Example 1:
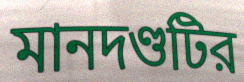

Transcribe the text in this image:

মানদণ্ডটির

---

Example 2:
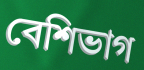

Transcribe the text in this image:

বেশিভাগ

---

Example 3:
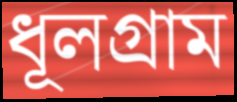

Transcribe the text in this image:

ধূলগ্রাম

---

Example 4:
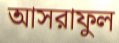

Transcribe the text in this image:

আসরাফুল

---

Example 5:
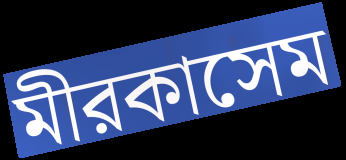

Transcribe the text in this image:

মীরকাসেম